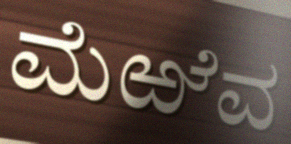
ಮೆಱೆವ